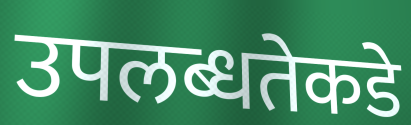
उपलब्धतेकडे